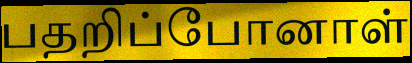
பதறிப்போனாள்